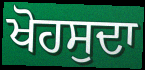
ਖੋਹਸੁਦਾ